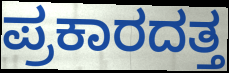
ಪ್ರಕಾರದತ್ತ